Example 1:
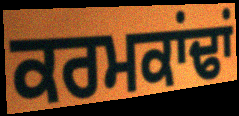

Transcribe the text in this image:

ਕਰਮਕਾਂਢਾਂ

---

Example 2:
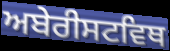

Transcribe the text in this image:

ਅਬੇਰੀਸਟਵਿਥ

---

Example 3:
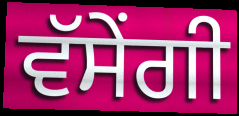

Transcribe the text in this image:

ਵੱਸੇਂਗੀ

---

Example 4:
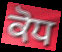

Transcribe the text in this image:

ਕੋਧ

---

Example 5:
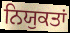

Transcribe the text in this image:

ਨਿਯੁਕਤਾਂ